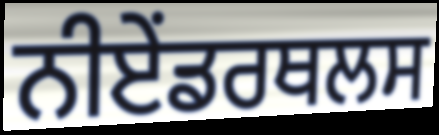
ਨੀਏਂਡਰਥਲਸ